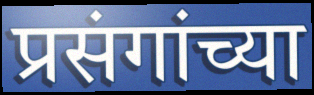
प्रसंगांच्या